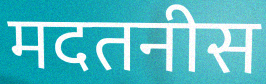
मदतनीस